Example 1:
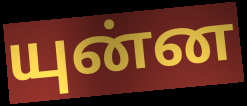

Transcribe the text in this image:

யுன்ன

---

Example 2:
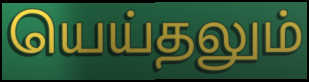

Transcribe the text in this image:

யெய்தலும்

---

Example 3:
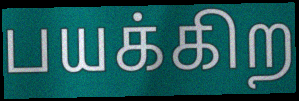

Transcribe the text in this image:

பயக்கிற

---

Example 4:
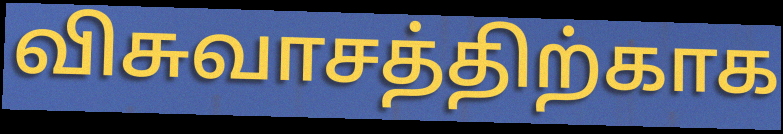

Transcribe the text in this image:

விசுவாசத்திற்காக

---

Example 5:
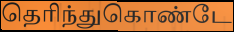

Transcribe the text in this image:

தெரிந்துகொண்டே